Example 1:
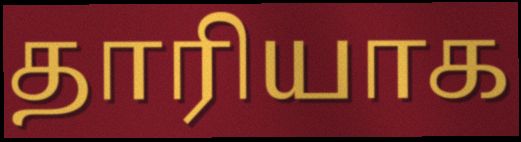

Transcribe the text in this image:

தாரியாக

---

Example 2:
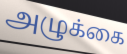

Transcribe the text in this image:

அழுக்கை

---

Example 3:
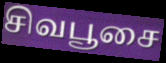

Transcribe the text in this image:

சிவபூசை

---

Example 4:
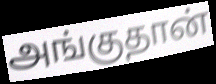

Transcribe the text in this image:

அங்குதான்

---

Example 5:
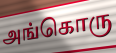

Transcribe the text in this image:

அங்கொரு